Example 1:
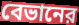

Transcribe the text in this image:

বেভানের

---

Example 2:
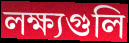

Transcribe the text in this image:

লক্ষ্যগুলি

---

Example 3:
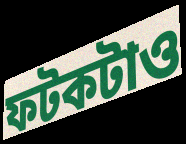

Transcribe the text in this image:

ফটকটাও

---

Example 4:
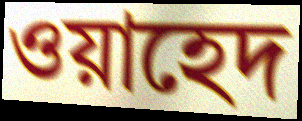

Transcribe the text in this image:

ওয়াহেদ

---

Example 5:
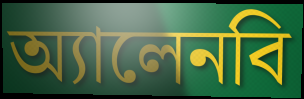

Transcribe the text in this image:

অ্যালেনবি